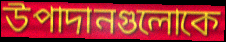
উপাদানগুলোকে